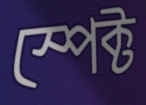
স্পেক্ট